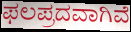
ಫಲಪ್ರದವಾಗಿವೆ